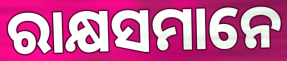
ରାକ୍ଷସମାନେ